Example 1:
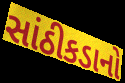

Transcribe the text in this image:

સાંઠીકડાનો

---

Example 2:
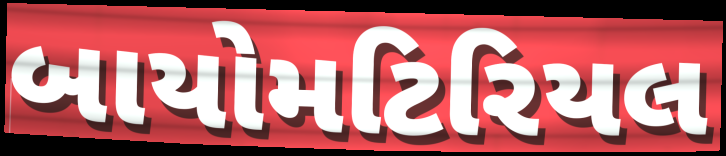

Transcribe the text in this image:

બાયોમટિરિયલ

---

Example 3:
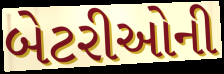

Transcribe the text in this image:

બેટરીઓની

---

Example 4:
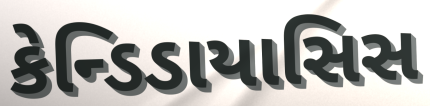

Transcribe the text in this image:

કેન્ડિડાયાસિસ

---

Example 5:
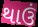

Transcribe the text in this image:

થાઉં